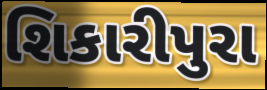
શિકારીપુરા